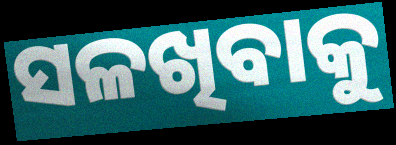
ସଳଖିବାକୁ